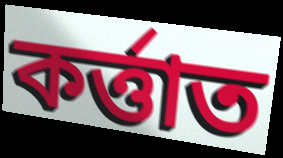
কৰ্ত্তাত